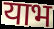
याभ